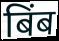
बिंब